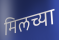
मिलच्या